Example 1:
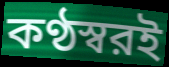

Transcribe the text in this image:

কণ্ঠস্বরই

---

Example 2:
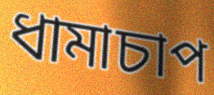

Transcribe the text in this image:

ধামাচাপ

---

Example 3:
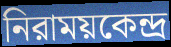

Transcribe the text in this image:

নিরাময়কেন্দ্র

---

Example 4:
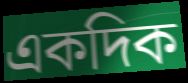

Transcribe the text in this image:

একদিক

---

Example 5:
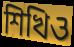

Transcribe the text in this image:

শিখিও